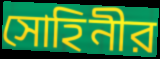
সোহিনীর